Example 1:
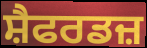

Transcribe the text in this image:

ਸ਼ੈਫਰਡਜ਼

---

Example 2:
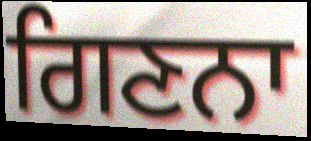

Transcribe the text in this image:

ਗਿਣਨਾ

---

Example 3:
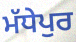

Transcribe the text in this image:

ਮੱਧੇਪੁਰ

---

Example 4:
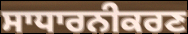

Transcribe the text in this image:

ਸਾਧਾਰਨੀਕਰਣ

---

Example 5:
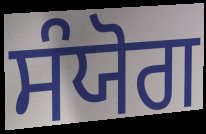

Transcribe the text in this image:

ਸੰਯੋਗ